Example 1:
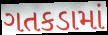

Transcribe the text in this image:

ગતકડામાં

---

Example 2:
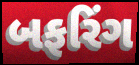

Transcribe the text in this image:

બફરિંગ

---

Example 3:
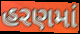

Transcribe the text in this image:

હરણમાં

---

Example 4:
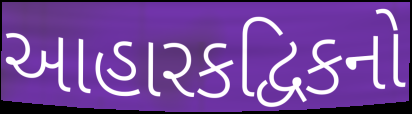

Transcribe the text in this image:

આહારકદ્વિકનો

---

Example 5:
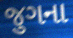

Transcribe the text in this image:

જુગના